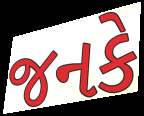
જનકે